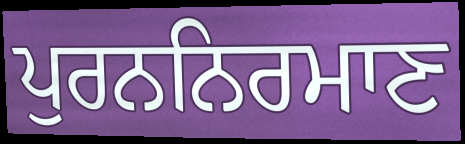
ਪੁਰਨਨਿਰਮਾਣ